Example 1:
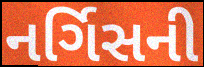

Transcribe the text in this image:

નર્ગિસની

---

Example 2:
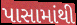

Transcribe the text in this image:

પાસામાંથી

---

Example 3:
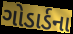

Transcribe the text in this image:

ગોડાર્ડના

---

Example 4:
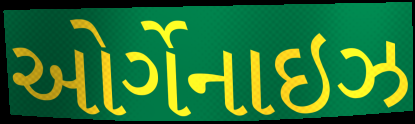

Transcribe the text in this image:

ઓર્ગેનાઇઝ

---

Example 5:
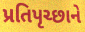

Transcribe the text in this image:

પ્રતિપૃચ્છાને